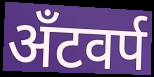
अँटवर्प